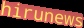
hirunews